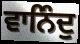
ਵਾਨਿੰਦੁ